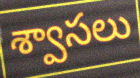
శ్వాసలు